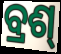
ବ୍ରଶ୍